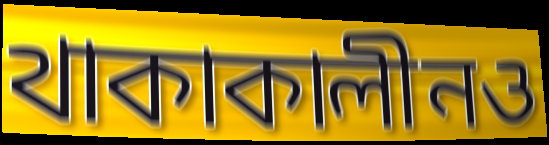
থাকাকালীনও